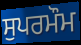
ਸੁਪਰਮੌਮ